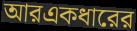
আরএকধারের